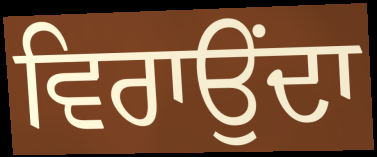
ਵਿਰਾਉਂਦਾ